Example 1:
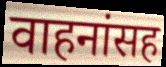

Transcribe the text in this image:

वाहनांसह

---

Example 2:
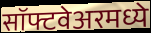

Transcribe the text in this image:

सॉफ्टवेअरमध्ये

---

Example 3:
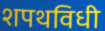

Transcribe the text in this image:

शपथविधी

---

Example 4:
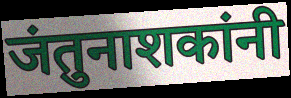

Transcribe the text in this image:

जंतुनाशकांनी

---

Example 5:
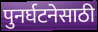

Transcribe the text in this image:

पुनर्घटनेसाठी